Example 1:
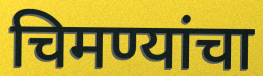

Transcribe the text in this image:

चिमण्यांचा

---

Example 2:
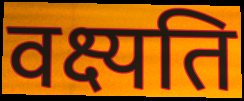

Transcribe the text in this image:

वक्ष्यति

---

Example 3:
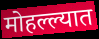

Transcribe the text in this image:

मोहल्ल्यात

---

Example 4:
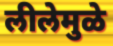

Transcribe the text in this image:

लीलेमुळे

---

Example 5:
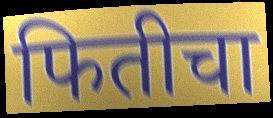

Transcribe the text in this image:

फितीचा